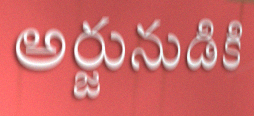
అర్జునుడికి